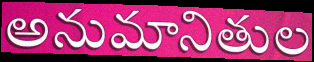
అనుమానితుల